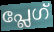
പ്ലേഗ്